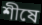
শীষে